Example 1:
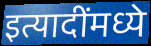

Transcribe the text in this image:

इत्यादींमध्ये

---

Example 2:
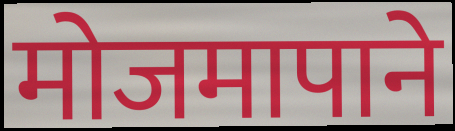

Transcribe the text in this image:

मोजमापाने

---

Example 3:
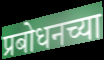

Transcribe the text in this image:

प्रबोधनच्या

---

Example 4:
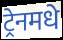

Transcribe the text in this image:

ट्रेनमधे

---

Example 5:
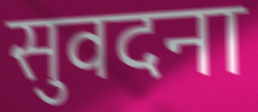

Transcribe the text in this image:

सुवदना